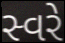
સ્વરે